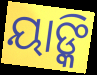
ୟାଙ୍କି